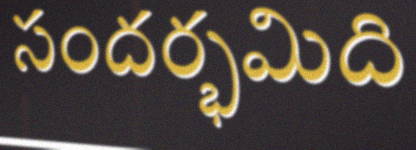
సందర్భమిది